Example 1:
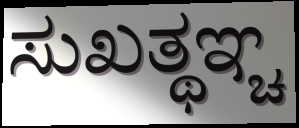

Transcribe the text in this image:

ಸುಖತ್ಥಞ್ಚ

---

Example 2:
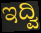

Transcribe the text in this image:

ಇದ್ವಿ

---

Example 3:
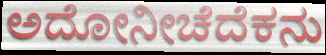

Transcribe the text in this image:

ಅದೋನೀಚೆದೆಕನು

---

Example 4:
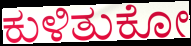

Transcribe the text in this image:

ಕುಳಿತುಕೋ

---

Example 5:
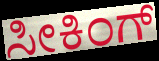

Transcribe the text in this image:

ಸೀಕಿಂಗ್